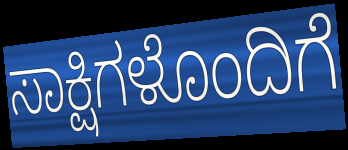
ಸಾಕ್ಷಿಗಳೊಂದಿಗೆ